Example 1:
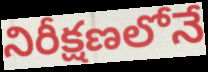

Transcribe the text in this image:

నిరీక్షణలోనే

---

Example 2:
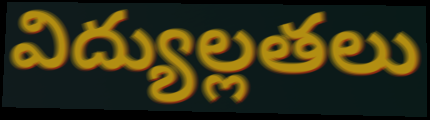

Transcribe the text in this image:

విద్యుల్లతలు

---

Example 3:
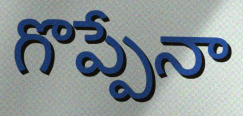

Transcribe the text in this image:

గొప్పేనా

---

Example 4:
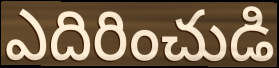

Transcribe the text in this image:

ఎదిరించుడి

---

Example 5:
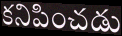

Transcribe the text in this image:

కనిపించడు